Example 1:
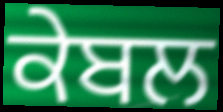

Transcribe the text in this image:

ਕੇਬਲ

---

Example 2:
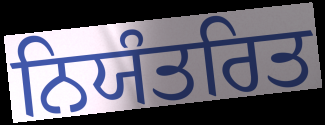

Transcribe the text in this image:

ਨਿਯੰਤਰਿਤ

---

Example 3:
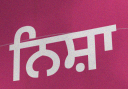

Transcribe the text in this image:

ਨਿਸ਼ਾ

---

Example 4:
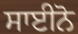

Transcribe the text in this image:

ਸਾਈਨੋ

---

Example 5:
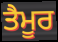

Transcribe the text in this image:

ਤੈਮੂਰ